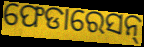
ଫେଡାରେସନ୍